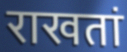
राखतां